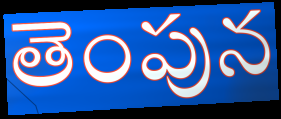
తెంపున